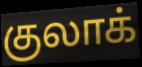
குலாக்